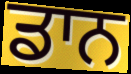
ਡਾਨ